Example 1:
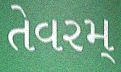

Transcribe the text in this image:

તેવરમ્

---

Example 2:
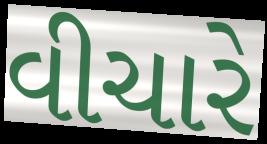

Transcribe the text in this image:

વીચારે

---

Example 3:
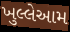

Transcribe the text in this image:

ખુલ્લેઆમ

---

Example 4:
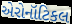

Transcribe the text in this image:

એરોનૉટિકલ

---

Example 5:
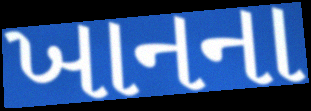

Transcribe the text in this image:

ખાનના